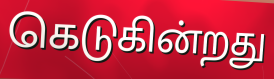
கெடுகின்றது